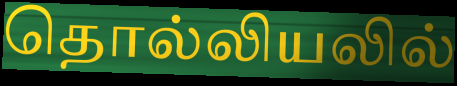
தொல்லியலில்